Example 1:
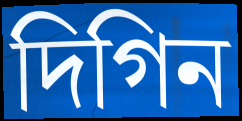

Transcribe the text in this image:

দিগিন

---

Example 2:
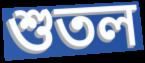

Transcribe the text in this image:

শুতল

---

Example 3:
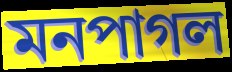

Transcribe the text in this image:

মনপাগল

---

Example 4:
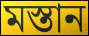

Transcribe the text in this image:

মস্তান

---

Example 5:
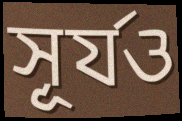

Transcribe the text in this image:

সূর্যও